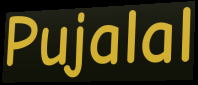
Pujalal